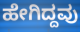
ಹೇಗಿದ್ದವು